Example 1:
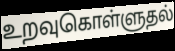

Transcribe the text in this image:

உறவுகொள்ளுதல்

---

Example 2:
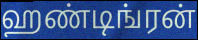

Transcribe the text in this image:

ஹண்டிங்ரன்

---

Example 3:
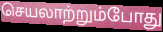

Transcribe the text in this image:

செயலாற்றும்போது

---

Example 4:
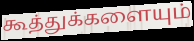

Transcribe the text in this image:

கூத்துக்களையும்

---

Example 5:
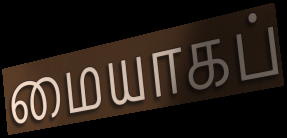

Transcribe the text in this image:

மையாகப்